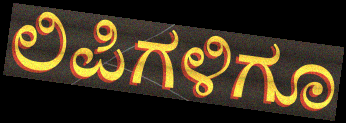
ಲಿಪಿಗಳಿಗೂ